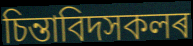
চিন্তাবিদসকলৰ